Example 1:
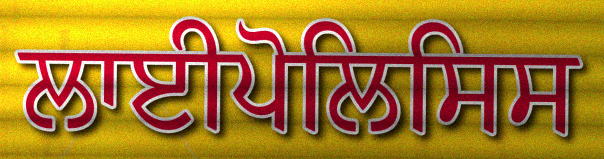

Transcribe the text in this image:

ਲਾਈਪੋਲਿਸਿਸ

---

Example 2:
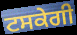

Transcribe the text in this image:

ਟਸਕੇਗੀ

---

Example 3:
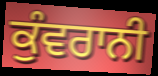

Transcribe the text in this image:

ਕੁੰਵਰਾਨੀ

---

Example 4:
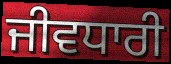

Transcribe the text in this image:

ਜੀਵਧਾਰੀ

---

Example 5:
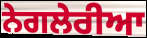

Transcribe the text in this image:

ਨੇਗਲੇਰੀਆ